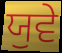
ਯੁਵੇ